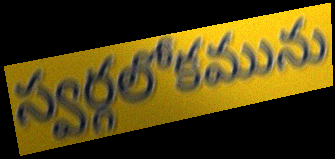
స్వర్గలోకమును